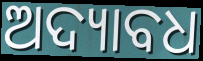
ଅଦ୍ୟାବଧ